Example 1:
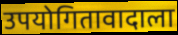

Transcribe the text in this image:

उपयोगितावादाला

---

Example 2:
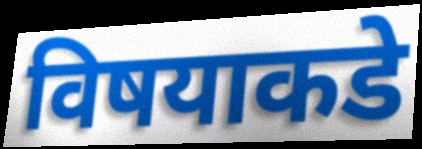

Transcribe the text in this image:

विषयाकडे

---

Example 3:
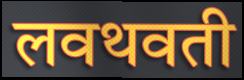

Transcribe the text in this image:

लवथवती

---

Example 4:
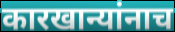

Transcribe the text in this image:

कारखान्यांनाच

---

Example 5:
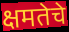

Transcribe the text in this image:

क्षमतेचे